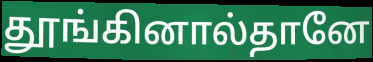
தூங்கினால்தானே